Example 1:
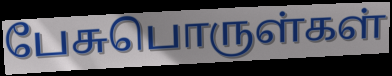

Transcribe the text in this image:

பேசுபொருள்கள்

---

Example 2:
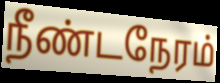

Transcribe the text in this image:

நீண்டநேரம்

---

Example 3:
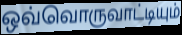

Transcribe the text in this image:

ஒவ்வொருவாட்டியும்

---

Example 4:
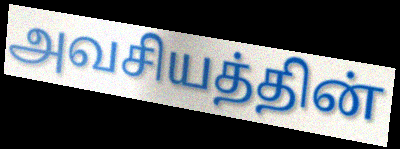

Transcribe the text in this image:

அவசியத்தின்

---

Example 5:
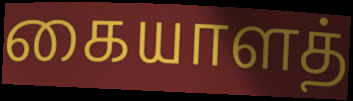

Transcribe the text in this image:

கையாளத்